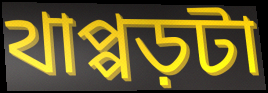
থাপ্পড়টা